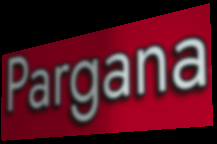
Pargana